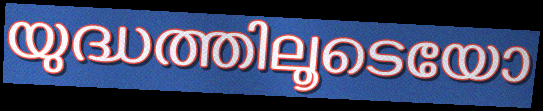
യുദ്ധത്തിലൂടെയോ